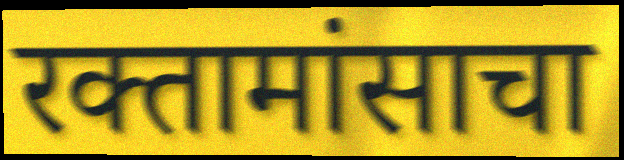
रक्तामांसाचा